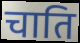
चाति